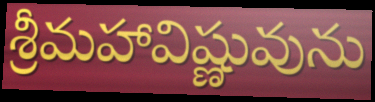
శ్రీమహావిష్ణువును